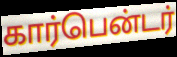
கார்பென்டர்